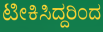
ಟೀಕಿಸಿದ್ದರಿಂದ